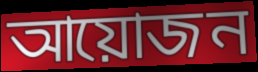
আয়োজন